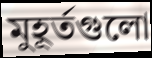
মুহূর্তগুলো